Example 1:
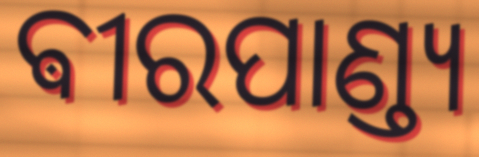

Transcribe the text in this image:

ଵୀରପାଣ୍ଡ୍ୟ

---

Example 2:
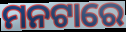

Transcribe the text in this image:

ମନଟାରେ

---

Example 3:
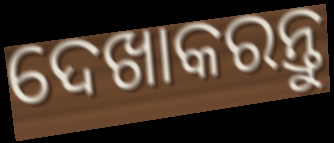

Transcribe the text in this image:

ଦେଖାକରନ୍ତୁ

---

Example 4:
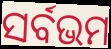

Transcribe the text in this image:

ସର୍ବଭମ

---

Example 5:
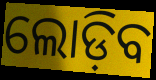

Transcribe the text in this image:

ଲୋଡ଼ିବ